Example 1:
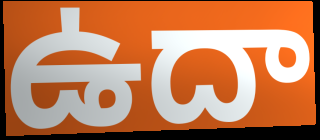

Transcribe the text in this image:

ఉదా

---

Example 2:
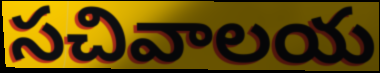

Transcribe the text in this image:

సచివాలయ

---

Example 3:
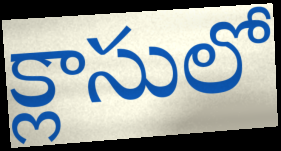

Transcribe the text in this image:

క్లాసులో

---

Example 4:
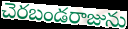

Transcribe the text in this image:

చెరబండరాజును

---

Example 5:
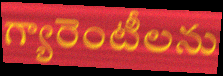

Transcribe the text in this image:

గ్యారెంటీలను